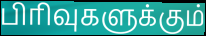
பிரிவுகளுக்கும்